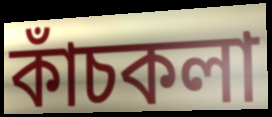
কাঁচকলা